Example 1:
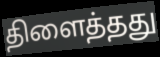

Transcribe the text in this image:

திளைத்தது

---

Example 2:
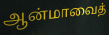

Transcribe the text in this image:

ஆன்மாவைத்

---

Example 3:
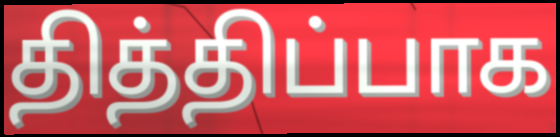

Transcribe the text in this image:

தித்திப்பாக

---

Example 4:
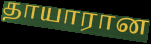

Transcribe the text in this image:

தாயாரான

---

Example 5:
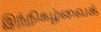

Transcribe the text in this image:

இந்நிகழ்வைக்